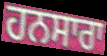
ਹਨਸਾਰਾ